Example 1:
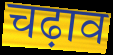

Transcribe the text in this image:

चढ़ाव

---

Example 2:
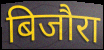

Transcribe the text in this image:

बिजौरा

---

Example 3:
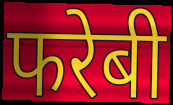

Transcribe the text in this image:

फरेबी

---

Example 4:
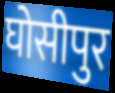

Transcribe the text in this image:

घोसीपुर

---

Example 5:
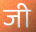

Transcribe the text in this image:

जी